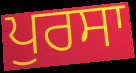
ਪੁਰਸਾ